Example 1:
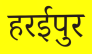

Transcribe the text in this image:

हरईपुर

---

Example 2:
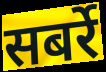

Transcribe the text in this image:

सबर्रे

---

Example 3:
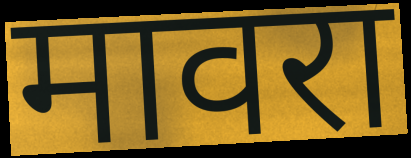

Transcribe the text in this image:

मावरा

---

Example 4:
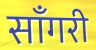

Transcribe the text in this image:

साँगरी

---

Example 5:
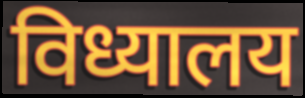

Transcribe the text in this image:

विध्यालय